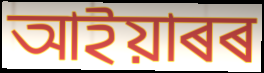
আইয়াৰৰ